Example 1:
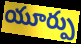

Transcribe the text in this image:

యూర్పు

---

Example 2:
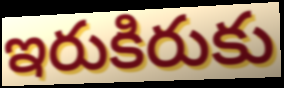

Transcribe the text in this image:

ఇరుకిరుకు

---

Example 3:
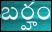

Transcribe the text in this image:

బర్హం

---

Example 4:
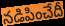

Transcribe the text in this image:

నడిపించేదీ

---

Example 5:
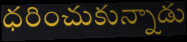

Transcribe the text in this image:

ధరించుకున్నాడు